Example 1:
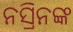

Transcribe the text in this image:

ନସ୍ରିନଙ୍କ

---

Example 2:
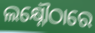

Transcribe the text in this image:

ଲକ୍ଷ୍ନୌଠାରେ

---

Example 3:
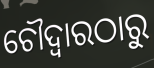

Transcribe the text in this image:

ଚୌଦ୍ୱାରଠାରୁ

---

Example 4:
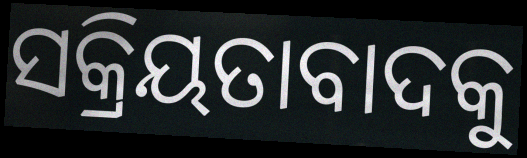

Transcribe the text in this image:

ସକ୍ରିୟତାବାଦକୁ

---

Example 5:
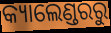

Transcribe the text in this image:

କ୍ୟାଲେଣ୍ଡରରୁ